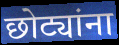
छोट्यांना